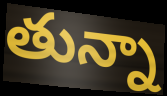
తున్నా